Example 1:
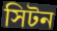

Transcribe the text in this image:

সিটন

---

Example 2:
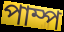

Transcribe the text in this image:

পাম্প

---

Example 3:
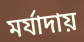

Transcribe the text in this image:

মর্যাদায়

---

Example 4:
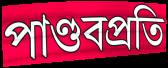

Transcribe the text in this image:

পাণ্ডবপ্রতি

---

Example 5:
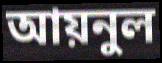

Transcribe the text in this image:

আয়নুল